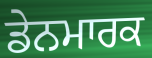
ਡੇਨਮਾਰਕ